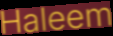
Haleem